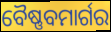
ବୈଷ୍ଣବମାର୍ଗର